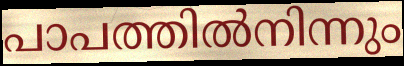
പാപത്തിൽനിന്നും